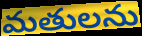
మతులను